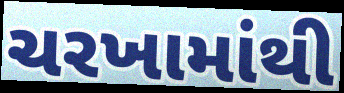
ચરખામાંથી